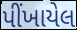
પીંખાયેલ